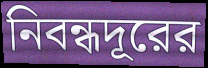
নিবন্ধদূরের